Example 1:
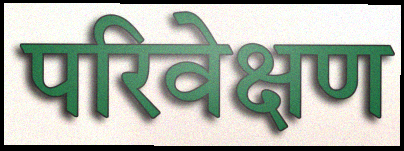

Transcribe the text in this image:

परिवेक्षण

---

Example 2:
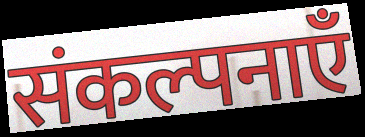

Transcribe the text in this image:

संकल्पनाएँ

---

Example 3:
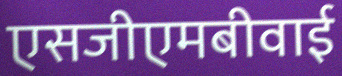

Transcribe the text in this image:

एसजीएमबीवाई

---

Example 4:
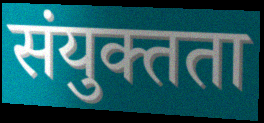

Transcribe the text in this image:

संयुक्तता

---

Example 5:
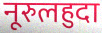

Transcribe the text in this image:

नूरुलहुदा